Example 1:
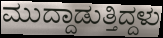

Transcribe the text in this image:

ಮುದ್ದಾಡುತ್ತಿದ್ದಳು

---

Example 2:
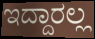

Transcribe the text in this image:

ಇದ್ದಾರಲ್ಲ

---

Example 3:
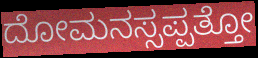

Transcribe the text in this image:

ದೋಮನಸ್ಸಪ್ಪತ್ತೋ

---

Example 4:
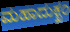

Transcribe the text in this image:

ಮಹಾದುಕ್ಖಂ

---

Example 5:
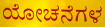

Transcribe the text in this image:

ಯೋಚನೆಗಳ